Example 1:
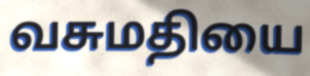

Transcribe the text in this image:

வசுமதியை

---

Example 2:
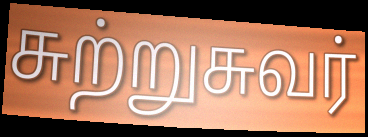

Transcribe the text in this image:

சுற்றுசுவர்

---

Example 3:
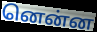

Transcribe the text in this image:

னென்ன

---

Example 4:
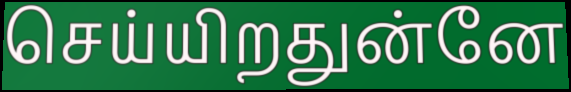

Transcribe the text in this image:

செய்யிறதுன்னே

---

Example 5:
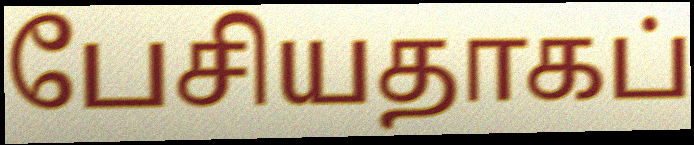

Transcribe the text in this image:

பேசியதாகப்